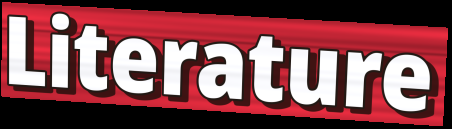
Literature